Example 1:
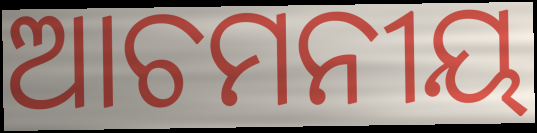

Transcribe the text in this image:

ଆଚମନୀୟ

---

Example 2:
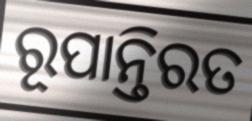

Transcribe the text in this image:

ରୂପାନ୍ତିରତ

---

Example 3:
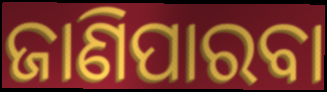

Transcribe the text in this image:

ଜାଣିପାରବା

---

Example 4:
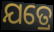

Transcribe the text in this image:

ଯତ୍ରେ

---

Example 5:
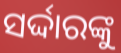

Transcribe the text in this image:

ସର୍ଦ୍ଦାରଙ୍କୁ